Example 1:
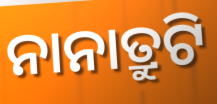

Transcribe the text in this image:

ନାନାତ୍ରୁଟି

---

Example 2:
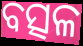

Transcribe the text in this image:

ବତ୍ସଳ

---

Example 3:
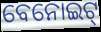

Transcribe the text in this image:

ବେନୋଇଟ୍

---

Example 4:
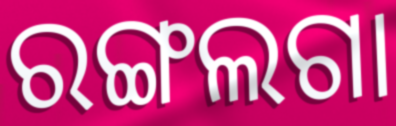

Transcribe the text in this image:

ରଙ୍ଗଲଗା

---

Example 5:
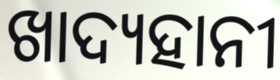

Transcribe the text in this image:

ଖାଦ୍ୟହାନୀ